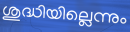
ശുദ്ധിയില്ലെന്നും